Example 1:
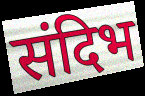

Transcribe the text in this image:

संदिभ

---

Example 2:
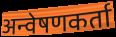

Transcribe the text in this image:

अन्वेषणकर्ता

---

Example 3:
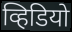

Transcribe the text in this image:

व्हिडियो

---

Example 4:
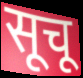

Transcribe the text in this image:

सूचू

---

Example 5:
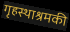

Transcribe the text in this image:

गृहस्थाश्रमकी